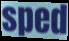
sped